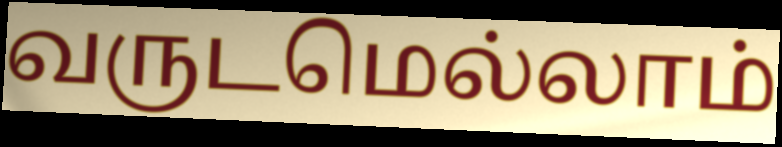
வருடமெல்லாம்